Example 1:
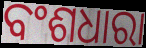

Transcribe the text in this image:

ବଂଶଧାରା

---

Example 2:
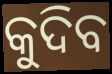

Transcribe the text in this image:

କୁଦିବ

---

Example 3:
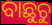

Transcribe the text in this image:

ବାଛୁଚୁ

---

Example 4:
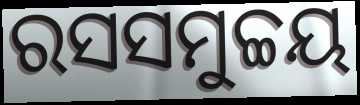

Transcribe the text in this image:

ରସସମୁଚ୍ଚୟ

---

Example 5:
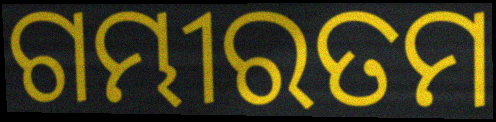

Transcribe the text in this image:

ଗମ୍ଭୀରତମ